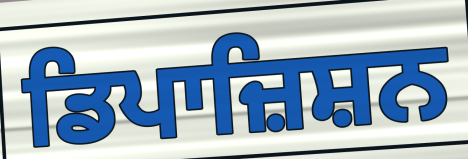
ਡਿਪਾਜ਼ਿਸ਼ਨ